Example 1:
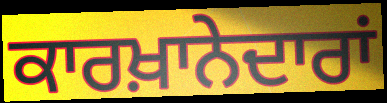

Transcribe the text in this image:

ਕਾਰਖ਼ਾਨੇਦਾਰਾਂ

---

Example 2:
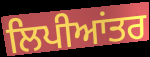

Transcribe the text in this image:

ਲਿਪੀਆਂਤਰ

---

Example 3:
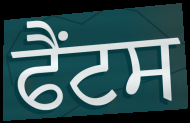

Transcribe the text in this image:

ਫੈਂਟਸ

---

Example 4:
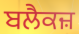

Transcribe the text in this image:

ਬਲੈਕਜ਼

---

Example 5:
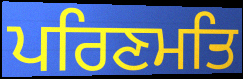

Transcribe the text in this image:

ਪਰਿਣਮਤਿ